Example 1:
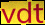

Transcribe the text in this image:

vdt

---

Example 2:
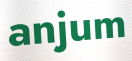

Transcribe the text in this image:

anjum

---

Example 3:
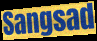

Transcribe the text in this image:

Sangsad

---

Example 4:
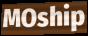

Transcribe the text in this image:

MOship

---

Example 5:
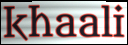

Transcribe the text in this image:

khaali